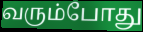
வரும்போது